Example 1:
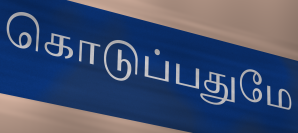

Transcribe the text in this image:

கொடுப்பதுமே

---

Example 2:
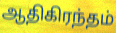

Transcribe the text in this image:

ஆதிகிரந்தம்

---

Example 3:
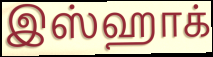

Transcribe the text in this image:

இஸ்ஹாக்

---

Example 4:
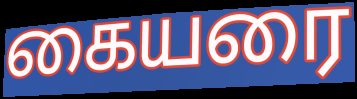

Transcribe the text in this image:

கையரை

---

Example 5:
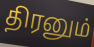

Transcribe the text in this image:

திரனும்